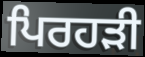
ਪਿਰਹੜੀ